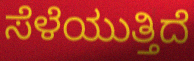
ಸೆಳೆಯುತ್ತಿದೆ